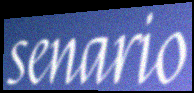
senario